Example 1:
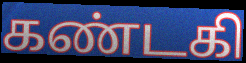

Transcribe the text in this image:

கண்டகி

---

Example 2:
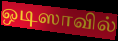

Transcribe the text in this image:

ஒடிஸாவில்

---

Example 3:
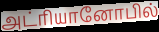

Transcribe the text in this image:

அட்ரியானோபில்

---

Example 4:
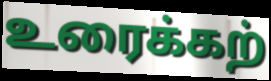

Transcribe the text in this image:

உரைக்கற்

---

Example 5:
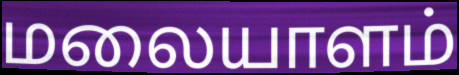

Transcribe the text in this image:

மலையாளம்